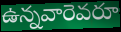
ఉన్నవారెవరూ